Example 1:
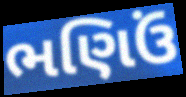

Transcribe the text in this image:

ભણિઉં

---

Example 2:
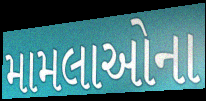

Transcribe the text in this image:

મામલાઓના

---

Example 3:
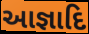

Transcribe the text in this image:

આજ્ઞાદિ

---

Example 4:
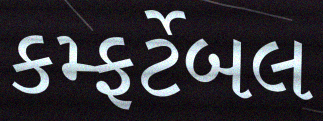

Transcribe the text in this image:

કમ્ફર્ટેબલ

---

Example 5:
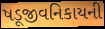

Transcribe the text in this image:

ષડૂજીવનિકાયની